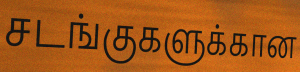
சடங்குகளுக்கான